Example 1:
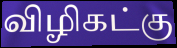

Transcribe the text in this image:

விழிகட்கு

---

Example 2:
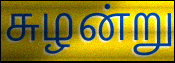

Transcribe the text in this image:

சுழன்று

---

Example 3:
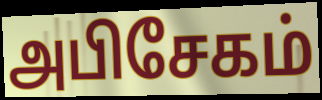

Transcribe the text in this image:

அபிசேகம்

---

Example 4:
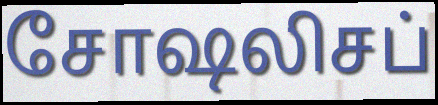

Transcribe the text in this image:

சோஷலிசப்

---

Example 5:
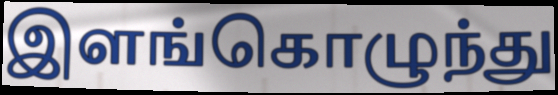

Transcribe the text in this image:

இளங்கொழுந்து